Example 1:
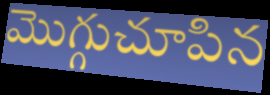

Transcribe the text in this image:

మొగ్గుచూపిన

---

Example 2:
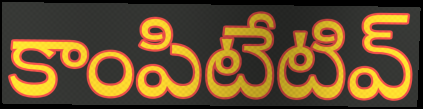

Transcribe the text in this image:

కాంపిటేటివ్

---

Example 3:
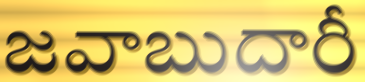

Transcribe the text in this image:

జవాబుదారీ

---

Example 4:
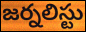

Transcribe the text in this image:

జర్నలిస్టు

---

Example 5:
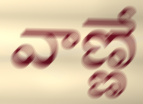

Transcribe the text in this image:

వాణ్ణే